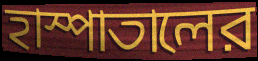
হাস্পাতালের